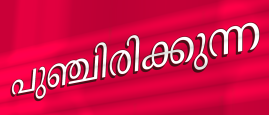
പുഞ്ചിരിക്കുന്ന